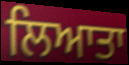
ਲਿਆਤਾ